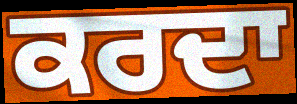
ਕਰਦਾ